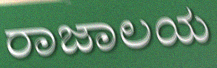
ರಾಜಾಲಯ